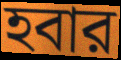
হবার